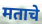
मताचे